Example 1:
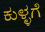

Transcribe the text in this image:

ಕುಳ್ಳಗೆ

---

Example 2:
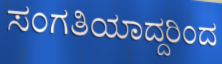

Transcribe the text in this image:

ಸಂಗತಿಯಾದ್ದರಿಂದ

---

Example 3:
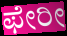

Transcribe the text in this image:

ಫೇರೀ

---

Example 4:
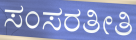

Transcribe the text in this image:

ಸಂಸರತೀತಿ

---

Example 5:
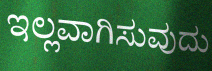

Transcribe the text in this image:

ಇಲ್ಲವಾಗಿಸುವುದು